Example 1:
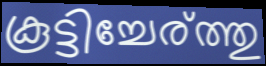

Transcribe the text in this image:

കൂട്ടിച്ചേര്ത്തു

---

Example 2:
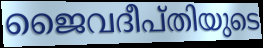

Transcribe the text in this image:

ജൈവദീപ്തിയുടെ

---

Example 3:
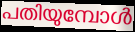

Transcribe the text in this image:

പതിയുമ്പോൾ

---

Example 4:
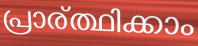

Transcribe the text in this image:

പ്രാര്ത്ഥിക്കാം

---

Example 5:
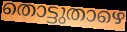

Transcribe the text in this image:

തൊട്ടുതാഴെ